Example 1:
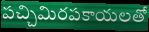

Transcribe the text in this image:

పచ్చిమిరపకాయలతో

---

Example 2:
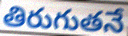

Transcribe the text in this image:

తిరుగుతనే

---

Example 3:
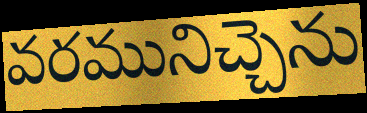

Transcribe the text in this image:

వరమునిచ్చెను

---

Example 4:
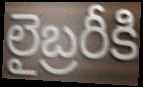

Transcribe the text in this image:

లైబ్రరీకి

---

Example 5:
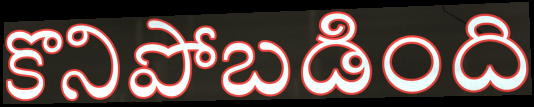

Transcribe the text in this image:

కొనిపోబడింది